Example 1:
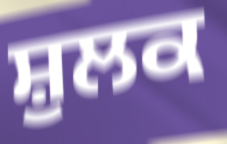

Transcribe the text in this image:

ਸ਼ੁਲਕ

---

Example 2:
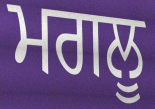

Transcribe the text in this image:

ਮਗਲੂ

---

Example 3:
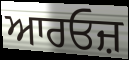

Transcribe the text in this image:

ਆਰਓਜ਼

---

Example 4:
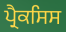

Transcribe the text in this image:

ਪ੍ਰੈਕਸਿਸ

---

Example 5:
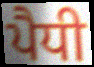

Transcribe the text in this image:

ਪੈਧੀ